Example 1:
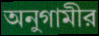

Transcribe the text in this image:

অনুগামীর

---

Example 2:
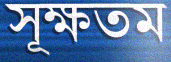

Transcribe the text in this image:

সূক্ষতম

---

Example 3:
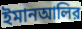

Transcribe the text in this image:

ইমানআলির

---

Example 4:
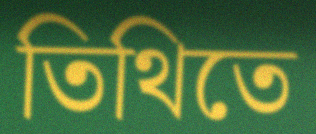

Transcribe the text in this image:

তিথিতে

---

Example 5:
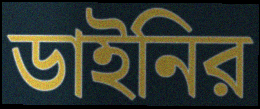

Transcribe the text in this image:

ডাইনির